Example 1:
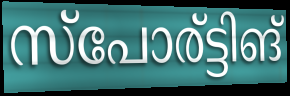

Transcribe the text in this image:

സ്പോര്ട്ടിങ്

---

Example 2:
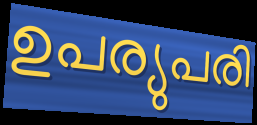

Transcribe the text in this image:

ഉപര്യുപരി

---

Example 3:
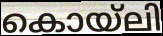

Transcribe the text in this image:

കൊയ്ലി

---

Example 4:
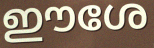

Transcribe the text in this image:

ഈശേ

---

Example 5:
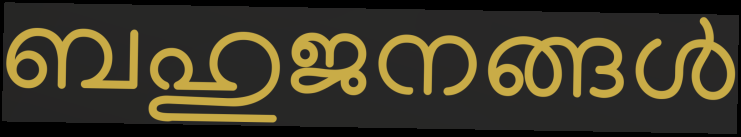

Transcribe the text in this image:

ബഹുജനങ്ങൾ